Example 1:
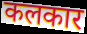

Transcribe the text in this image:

कलकार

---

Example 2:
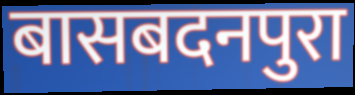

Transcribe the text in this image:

बासबदनपुरा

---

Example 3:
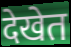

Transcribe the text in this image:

देखेत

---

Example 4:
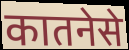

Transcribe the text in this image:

कातनेसे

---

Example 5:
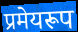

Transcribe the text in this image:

प्रमेयरूप